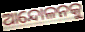
ଆନ୍ଦୋଳନକୁ